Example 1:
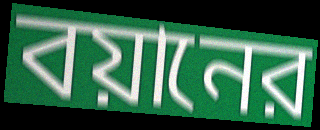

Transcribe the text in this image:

বয়ানের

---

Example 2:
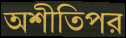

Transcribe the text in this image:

অশীতিপর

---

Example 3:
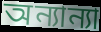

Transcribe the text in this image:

অন্যান্যা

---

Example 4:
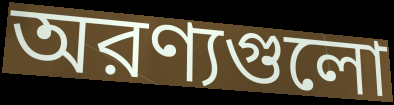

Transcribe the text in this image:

অরণ্যগুলো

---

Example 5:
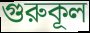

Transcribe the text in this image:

গুরুকূল